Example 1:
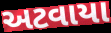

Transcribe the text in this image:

અટવાયા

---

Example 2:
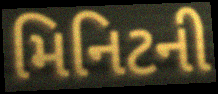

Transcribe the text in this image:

મિનિટની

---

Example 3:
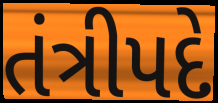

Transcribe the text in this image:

તંત્રીપદે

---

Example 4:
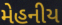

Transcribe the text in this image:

મેહનીય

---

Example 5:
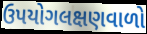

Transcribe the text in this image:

ઉપયોગલક્ષણવાળો